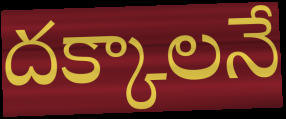
దక్కాలనే